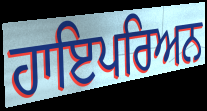
ਹਾਇਪਰਿਅਨ